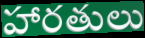
హారతులు